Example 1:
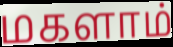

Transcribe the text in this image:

மகளாம்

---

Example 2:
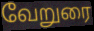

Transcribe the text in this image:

வேறுரை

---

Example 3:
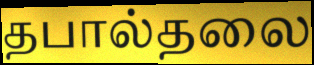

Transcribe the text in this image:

தபால்தலை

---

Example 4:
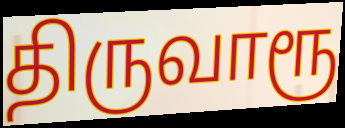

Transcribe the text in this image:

திருவாரூ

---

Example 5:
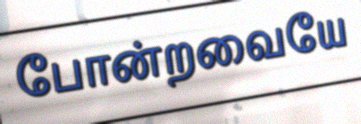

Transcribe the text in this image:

போன்றவையே